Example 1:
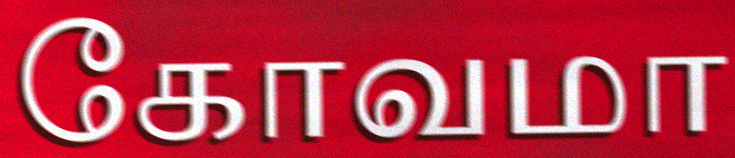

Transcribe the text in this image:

கோவமா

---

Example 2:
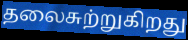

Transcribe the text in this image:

தலைசுற்றுகிறது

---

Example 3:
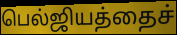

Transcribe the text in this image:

பெல்ஜியத்தைச்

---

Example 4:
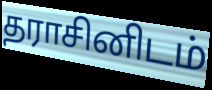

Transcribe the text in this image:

தராசினிடம்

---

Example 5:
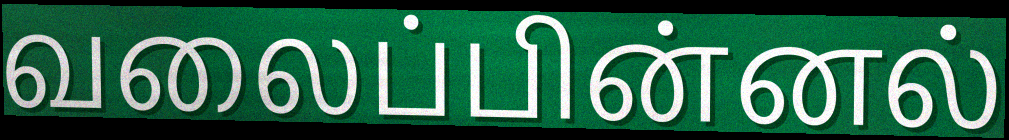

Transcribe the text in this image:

வலைப்பின்னல்